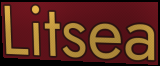
Litsea